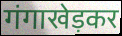
गंगाखेड़कर